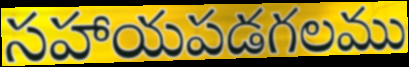
సహాయపడగలము